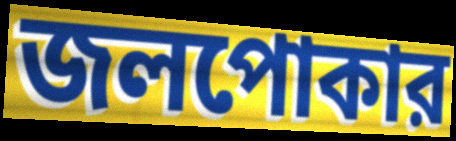
জলপোকার